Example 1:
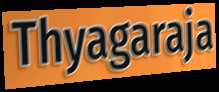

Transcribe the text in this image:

Thyagaraja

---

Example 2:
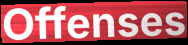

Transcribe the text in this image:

Offenses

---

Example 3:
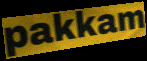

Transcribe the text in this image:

pakkam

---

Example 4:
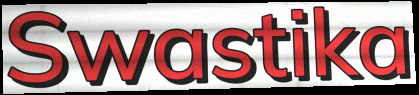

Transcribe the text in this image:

Swastika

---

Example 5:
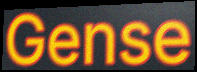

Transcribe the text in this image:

Gense